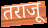
तराजू